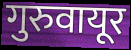
गुरुवायूर